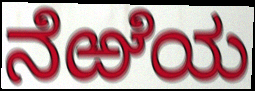
ನೆಱೆಯ